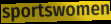
sportswomen